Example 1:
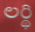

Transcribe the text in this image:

లర్థి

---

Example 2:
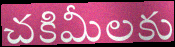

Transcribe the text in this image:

చకిమీలకు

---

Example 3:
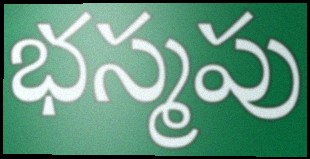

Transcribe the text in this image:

భస్మపు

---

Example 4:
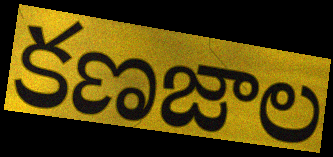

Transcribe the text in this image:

కణజాల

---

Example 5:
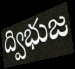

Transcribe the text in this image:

ద్విభుజ